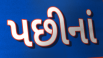
પછીનાં